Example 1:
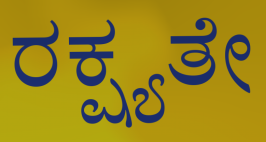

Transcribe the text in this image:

ರಕ್ಷ್ಯತೇ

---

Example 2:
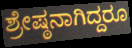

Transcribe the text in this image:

ಶ್ರೇಷ್ಠನಾಗಿದ್ದರೂ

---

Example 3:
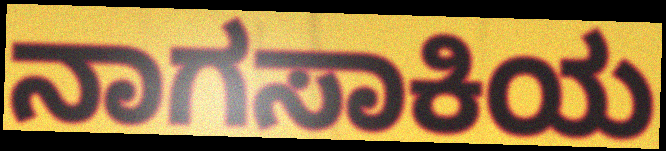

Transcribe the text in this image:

ನಾಗಸಾಕಿಯ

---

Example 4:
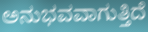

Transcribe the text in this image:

ಅನುಭವವಾಗುತ್ತಿದೆ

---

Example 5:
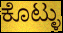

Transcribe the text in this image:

ಕೊಟ್ಳು